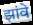
झांवे